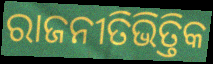
ରାଜନୀତିଭିତ୍ତିକ